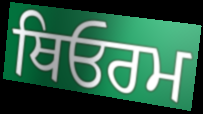
ਥਿਓਰਮ